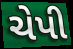
ચેપી